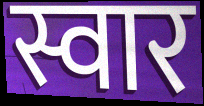
स्वार